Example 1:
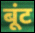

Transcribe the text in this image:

बूंट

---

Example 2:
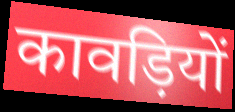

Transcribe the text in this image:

कावड़ियों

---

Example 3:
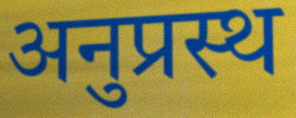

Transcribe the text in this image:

अनुप्रस्थ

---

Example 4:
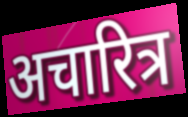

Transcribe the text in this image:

अचारित्र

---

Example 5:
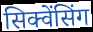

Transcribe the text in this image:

सिक्वेंसिंग